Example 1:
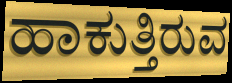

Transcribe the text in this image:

ಹಾಕುತ್ತಿರುವ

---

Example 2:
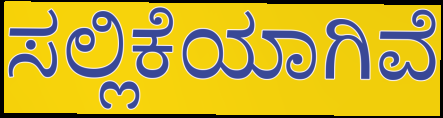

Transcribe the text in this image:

ಸಲ್ಲಿಕೆಯಾಗಿವೆ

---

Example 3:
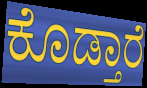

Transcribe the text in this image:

ಕೊಡ್ತಾರೆ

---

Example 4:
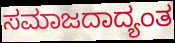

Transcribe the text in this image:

ಸಮಾಜದಾದ್ಯಂತ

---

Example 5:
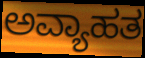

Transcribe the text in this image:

ಅವ್ಯಾಹತ